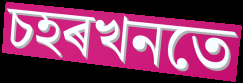
চহৰখনতে